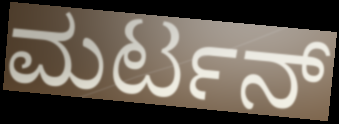
ಮರ್ಟನ್